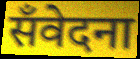
सँवेदना